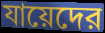
যায়েদের